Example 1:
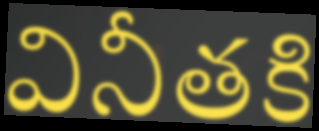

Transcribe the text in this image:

వినీతకి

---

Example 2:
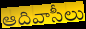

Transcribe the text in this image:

ఆదివాసీలు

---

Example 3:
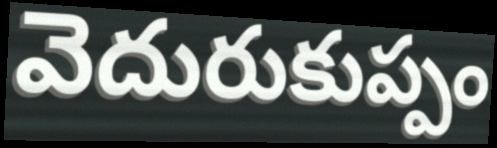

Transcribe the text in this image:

వెదురుకుప్పం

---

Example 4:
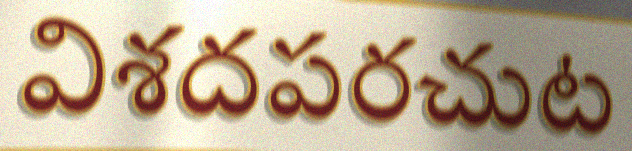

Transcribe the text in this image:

విశదపరచుట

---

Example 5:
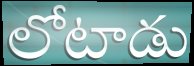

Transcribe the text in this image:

లోటాడు